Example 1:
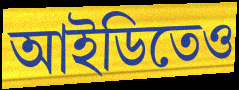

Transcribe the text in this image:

আইডিতেও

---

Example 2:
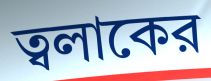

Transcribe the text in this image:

ত্বলাকের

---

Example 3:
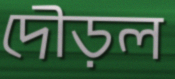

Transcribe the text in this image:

দৌড়ল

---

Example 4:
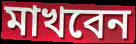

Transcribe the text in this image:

মাখবেন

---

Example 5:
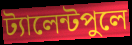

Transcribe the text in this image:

ট্যালেন্টপুলে